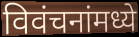
विवंचनांमध्ये